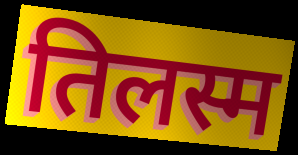
तिलस्म